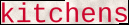
kitchens